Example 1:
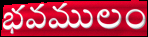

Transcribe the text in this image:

భవములం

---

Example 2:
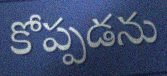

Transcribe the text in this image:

కోప్పడను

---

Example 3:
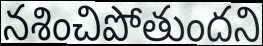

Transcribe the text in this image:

నశించిపోతుందని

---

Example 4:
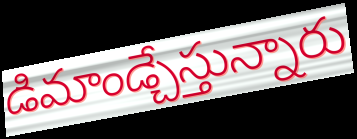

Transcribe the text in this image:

డిమాండ్చేస్తున్నారు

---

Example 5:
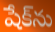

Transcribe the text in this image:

షేక్‌ను